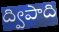
ద్విపాది